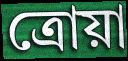
ত্রোয়া